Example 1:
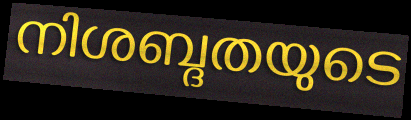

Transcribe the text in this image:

നിശബ്ദതയുടെ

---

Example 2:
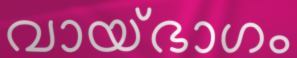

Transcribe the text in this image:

വായ്ഭാഗം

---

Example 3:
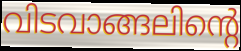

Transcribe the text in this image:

വിടവാങ്ങലിന്റെ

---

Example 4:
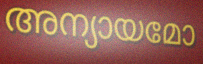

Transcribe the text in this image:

അന്യായമോ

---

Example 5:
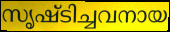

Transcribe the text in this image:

സൃഷ്ടിച്ചവനായ